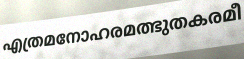
എത്രമനോഹരമത്ഭുതകരമീ